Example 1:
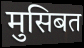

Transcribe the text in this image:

मुसिबत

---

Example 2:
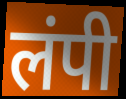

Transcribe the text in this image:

लंपी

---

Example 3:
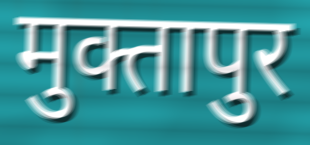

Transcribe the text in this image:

मुक्तापुर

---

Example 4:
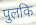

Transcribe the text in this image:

पुलकि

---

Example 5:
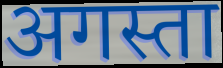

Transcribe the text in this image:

अगस्ता